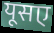
यूसए